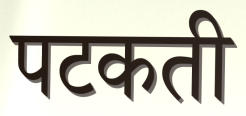
पटकती